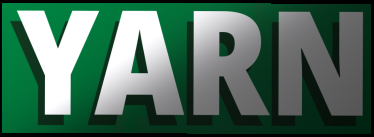
YARN